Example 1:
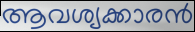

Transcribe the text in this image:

ആവശ്യക്കാരൻ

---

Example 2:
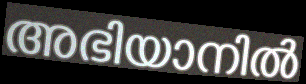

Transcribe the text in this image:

അഭിയാനിൽ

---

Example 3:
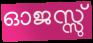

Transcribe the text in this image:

ഓജസ്സു്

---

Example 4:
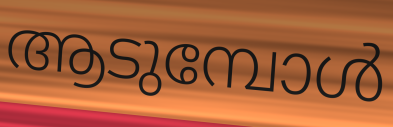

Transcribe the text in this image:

ആടുമ്പോൾ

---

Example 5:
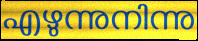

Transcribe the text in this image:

എഴുന്നുനിന്നു